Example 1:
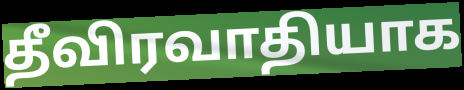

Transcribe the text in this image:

தீவிரவாதியாக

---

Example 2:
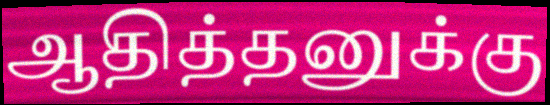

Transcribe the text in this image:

ஆதித்தனுக்கு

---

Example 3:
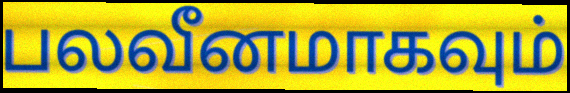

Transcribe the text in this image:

பலவீனமாகவும்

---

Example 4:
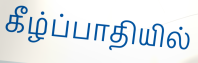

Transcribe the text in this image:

கீழ்ப்பாதியில்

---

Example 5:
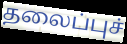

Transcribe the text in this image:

தலைப்புச்